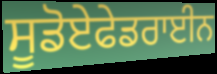
ਸੂਡੋਏਫੇਡਰਾਈਨ